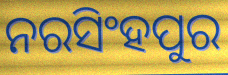
ନରସିଂହପୁର